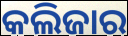
କଲିଜାର